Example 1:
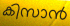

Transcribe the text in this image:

കിസാൻ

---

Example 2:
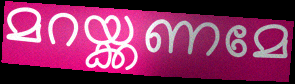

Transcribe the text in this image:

മറയ്ക്കണമേ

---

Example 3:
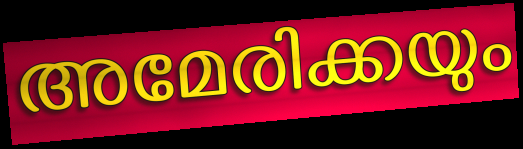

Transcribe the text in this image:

അമേരിക്കയും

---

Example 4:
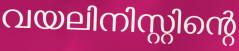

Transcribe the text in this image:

വയലിനിസ്റ്റിന്റെ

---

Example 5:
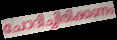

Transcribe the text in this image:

ചോദിച്ചിരിക്കണം